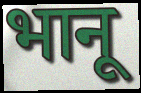
भानू